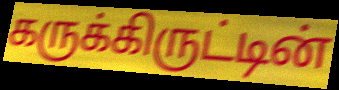
கருக்கிருட்டின்